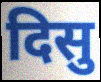
दिसु